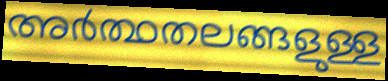
അർത്ഥതലങ്ങളുള്ള